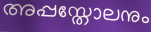
അപ്പസ്തോലനും